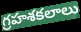
గ్రహశకలాలు